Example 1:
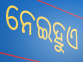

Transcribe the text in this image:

ନେଇହୁଏ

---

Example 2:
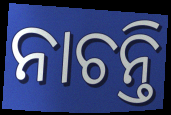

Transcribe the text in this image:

ନାଚନ୍ତି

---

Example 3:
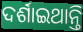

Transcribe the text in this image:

ଦର୍ଶାଇଥାନ୍ତି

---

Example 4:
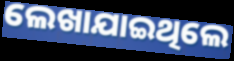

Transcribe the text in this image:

ଲେଖାଯାଇଥିଲେ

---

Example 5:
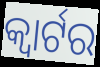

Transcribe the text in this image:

କ୍ଵାର୍ଟର